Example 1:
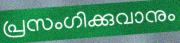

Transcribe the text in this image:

പ്രസംഗിക്കുവാനും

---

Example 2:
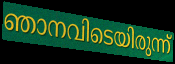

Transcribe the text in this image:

ഞാനവിടെയിരുന്ന്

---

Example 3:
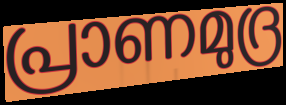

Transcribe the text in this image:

പ്രാണമുദ്ര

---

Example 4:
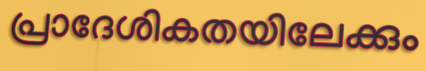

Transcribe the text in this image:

പ്രാദേശികതയിലേക്കും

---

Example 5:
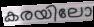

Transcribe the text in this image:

കരയിലോ